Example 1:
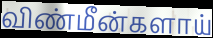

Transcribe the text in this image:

விண்மீன்களாய்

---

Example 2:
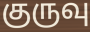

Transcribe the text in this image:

குருவு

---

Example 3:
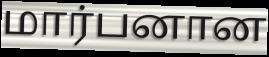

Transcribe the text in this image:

மார்பனான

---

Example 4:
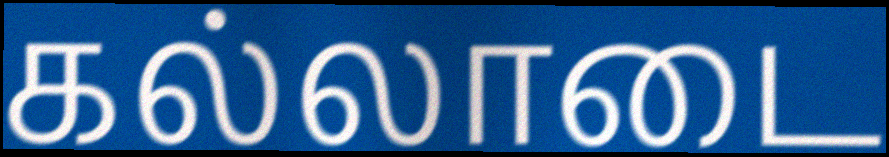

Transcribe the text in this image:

கல்லாடை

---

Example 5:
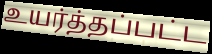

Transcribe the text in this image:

உயர்த்தப்பட்ட